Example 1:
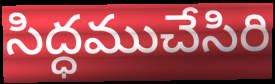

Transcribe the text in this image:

సిద్ధముచేసిరి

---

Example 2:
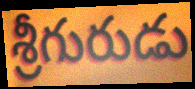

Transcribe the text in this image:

శ్రీగురుడు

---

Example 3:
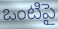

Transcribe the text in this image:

ఒంటిపై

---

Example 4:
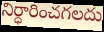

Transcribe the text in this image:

నిర్ధారించగలదు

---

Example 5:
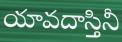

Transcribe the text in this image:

యావదాస్తినీ